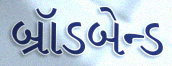
બ્રૉડબેન્ડ